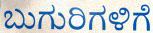
ಬುಗುರಿಗಳಿಗೆ